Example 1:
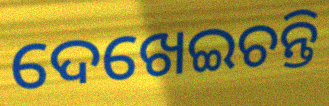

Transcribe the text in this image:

ଦେଖେଇଚନ୍ତି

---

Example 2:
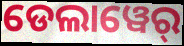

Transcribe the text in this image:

ଡେଲାୱେର୍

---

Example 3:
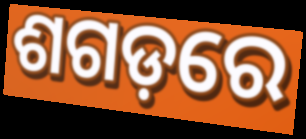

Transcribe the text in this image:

ଶଗଡ଼ରେ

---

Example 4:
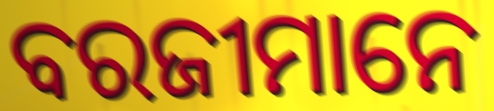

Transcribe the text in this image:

ବରଜୀମାନେ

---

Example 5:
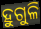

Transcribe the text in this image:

ହୁଗୁଳି